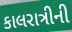
કાલરાત્રીની